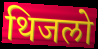
थिजलो